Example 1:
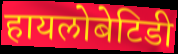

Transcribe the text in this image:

हायलोबेटिडी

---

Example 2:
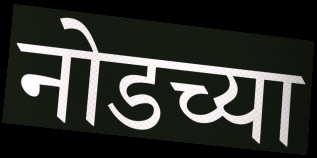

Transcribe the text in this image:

नोडच्या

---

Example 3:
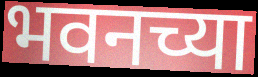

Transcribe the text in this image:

भवनच्या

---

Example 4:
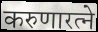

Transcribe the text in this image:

करुणारत्ने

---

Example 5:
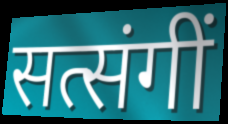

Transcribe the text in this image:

सत्संगीं